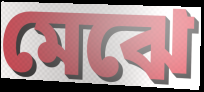
মেঝে